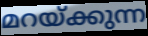
മറയ്ക്കുന്ന